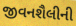
જીવનશૈલીની